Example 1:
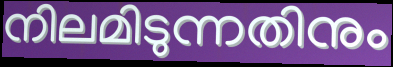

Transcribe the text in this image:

നിലമിടുന്നതിനും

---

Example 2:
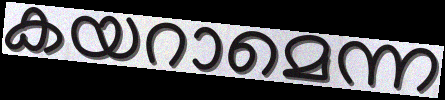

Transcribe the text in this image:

കയറാമെന്ന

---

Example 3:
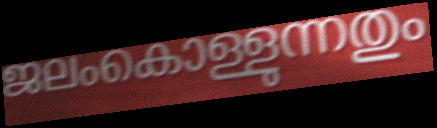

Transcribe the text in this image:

ജലംകൊള്ളുന്നതും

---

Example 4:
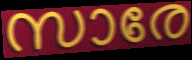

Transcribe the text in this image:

സാരേ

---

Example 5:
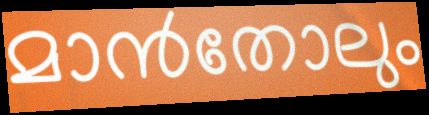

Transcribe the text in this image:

മാൻതോലും